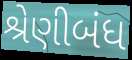
શ્રેણીબંધ